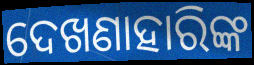
ଦେଖଣାହାରିଙ୍କ